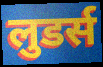
लुडर्स